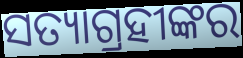
ସତ୍ୟାଗ୍ରହୀଙ୍କର